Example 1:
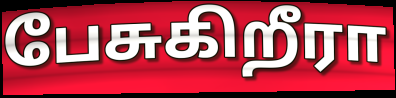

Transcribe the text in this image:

பேசுகிறீரா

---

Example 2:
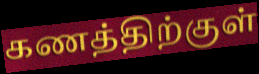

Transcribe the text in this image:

கணத்திற்குள்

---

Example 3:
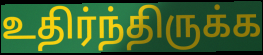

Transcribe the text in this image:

உதிர்ந்திருக்க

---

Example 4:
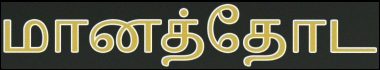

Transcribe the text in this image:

மானத்தோட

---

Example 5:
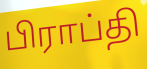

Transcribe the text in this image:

பிராப்தி